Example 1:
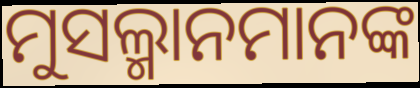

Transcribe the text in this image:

ମୁସଲ୍ମାନମାନଙ୍କ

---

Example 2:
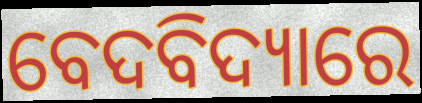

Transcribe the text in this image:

ବେଦବିଦ୍ୟାରେ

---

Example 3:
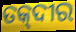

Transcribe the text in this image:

ତକ୍‌ଦୀର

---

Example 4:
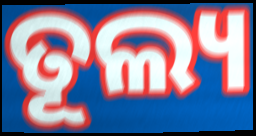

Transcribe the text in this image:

ତୂଲ୍ୟ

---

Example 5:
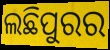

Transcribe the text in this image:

ଲଛିପୁରର